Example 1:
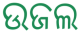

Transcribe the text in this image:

ଉଜଲ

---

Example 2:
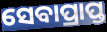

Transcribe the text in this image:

ସେବାପ୍ରାପ୍ତ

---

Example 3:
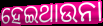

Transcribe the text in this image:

ହେଇଥାଉନା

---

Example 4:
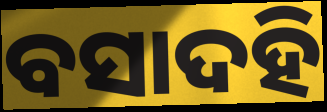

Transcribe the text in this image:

ବସାଦହି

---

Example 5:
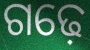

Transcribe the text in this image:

ଗଢ଼େ